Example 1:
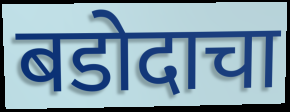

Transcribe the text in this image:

बडोदाचा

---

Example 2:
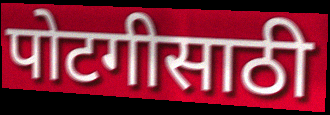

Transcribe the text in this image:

पोटगीसाठी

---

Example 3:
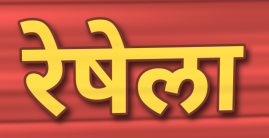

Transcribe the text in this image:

रेषेला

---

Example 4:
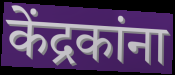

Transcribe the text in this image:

केंद्रकांना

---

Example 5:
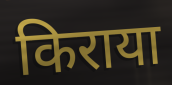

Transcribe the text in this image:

किराया